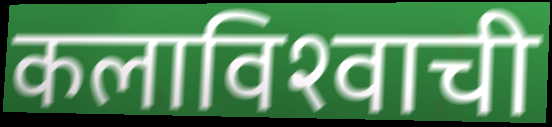
कलाविश्वाची